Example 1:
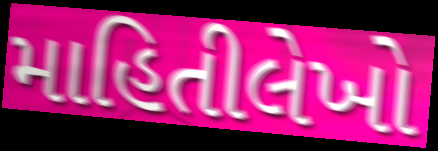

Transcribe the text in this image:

માહિતીલેખો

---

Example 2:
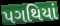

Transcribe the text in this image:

પગથિયાં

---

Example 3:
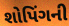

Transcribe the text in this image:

શોપિંગની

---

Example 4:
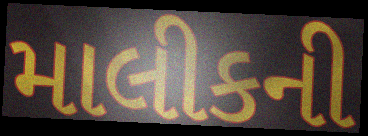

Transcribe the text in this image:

માલીકની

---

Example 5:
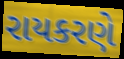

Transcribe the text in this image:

રાયકરણે